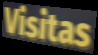
Visitas